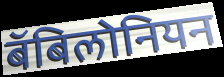
बॅबिलोनियन